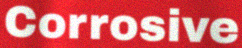
Corrosive